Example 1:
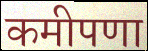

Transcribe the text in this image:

कमीपणा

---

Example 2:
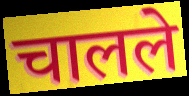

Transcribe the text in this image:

चालले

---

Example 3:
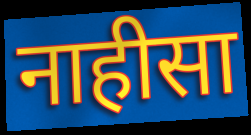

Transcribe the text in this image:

नाहीसा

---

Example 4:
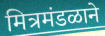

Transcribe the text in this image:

मित्रमंडळाने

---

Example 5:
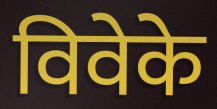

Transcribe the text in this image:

विवेके